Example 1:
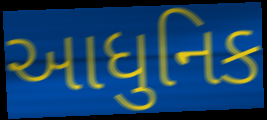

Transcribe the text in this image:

આધુનિક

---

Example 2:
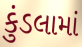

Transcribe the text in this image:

કુંડલામાં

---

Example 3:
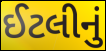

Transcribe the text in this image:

ઈટલીનું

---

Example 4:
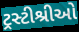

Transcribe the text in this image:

ટ્રસ્ટીશ્રીઓ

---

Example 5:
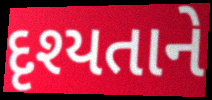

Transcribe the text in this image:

દૃશ્યતાને